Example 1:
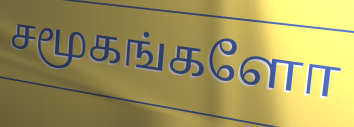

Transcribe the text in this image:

சமூகங்களோ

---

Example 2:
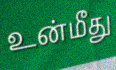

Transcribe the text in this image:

உன்மீது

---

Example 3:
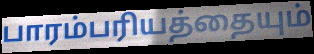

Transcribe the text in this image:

பாரம்பரியத்தையும்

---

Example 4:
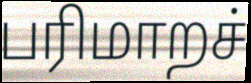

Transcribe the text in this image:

பரிமாறச்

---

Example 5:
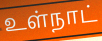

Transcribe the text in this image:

உள்நாட்